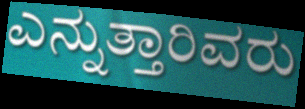
ಎನ್ನುತ್ತಾರಿವರು